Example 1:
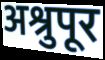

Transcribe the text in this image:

अश्रुपूर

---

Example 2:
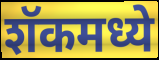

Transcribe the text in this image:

शॅकमध्ये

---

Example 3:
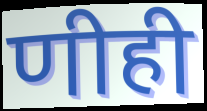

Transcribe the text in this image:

णीही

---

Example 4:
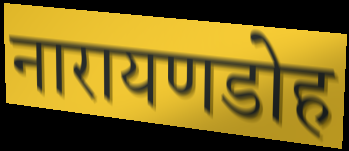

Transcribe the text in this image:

नारायणडोह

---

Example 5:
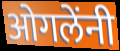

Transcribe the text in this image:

ओगलेंनी